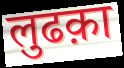
लुढक़ा